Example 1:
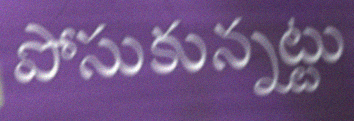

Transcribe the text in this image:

పోసుకున్నట్టు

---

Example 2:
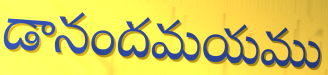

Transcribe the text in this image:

డానందమయము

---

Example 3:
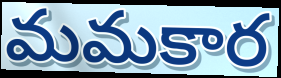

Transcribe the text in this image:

మమకార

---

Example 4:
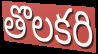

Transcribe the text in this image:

తొలకరి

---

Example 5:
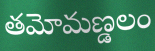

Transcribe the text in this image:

తమోమణ్డలం